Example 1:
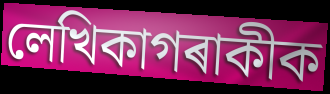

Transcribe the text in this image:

লেখিকাগৰাকীক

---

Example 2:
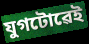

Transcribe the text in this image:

যুগটোৱেই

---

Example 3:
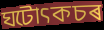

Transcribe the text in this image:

ঘটোৎকচৰ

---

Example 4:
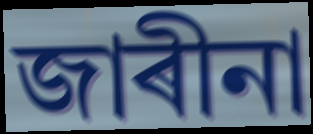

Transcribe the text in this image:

জাৰীনা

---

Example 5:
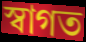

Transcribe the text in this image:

স্বাগত